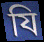
যি